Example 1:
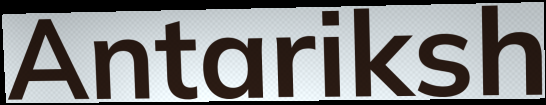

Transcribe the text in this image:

Antariksh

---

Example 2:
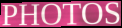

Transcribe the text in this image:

PHOTOS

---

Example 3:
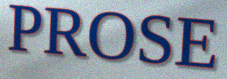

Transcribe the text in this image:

PROSE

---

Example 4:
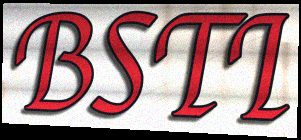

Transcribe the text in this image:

BSTI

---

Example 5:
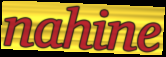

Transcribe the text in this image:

nahine